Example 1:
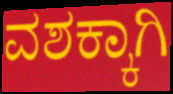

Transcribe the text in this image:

ವಶಕ್ಕಾಗಿ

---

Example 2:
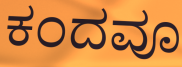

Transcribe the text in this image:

ಕಂದವೂ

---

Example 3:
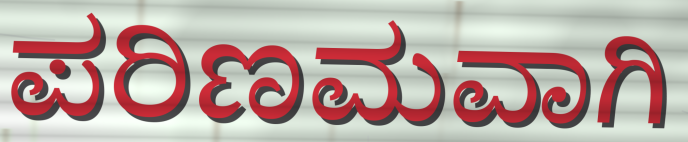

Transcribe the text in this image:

ಪರಿಣಮವಾಗಿ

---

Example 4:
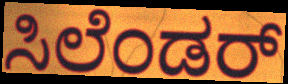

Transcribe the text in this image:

ಸಿಲೆಂಡರ್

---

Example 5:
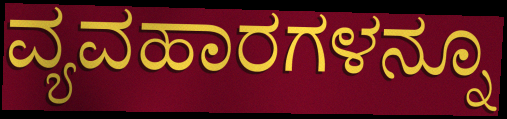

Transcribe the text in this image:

ವ್ಯವಹಾರಗಳನ್ನೂ